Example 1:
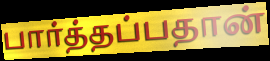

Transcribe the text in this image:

பார்த்தப்பதான்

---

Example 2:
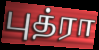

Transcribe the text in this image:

புத்ரா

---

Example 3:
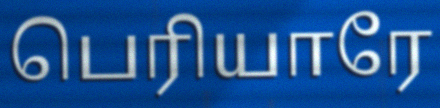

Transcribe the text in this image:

பெரியாரே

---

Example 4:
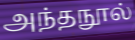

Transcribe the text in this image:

அந்தநூல்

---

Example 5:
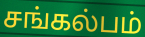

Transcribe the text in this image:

சங்கல்பம்